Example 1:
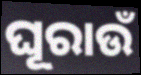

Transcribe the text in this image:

ଘୂରାଉଁ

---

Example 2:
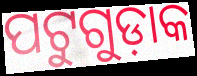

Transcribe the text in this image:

ପଟୁଗୁଡ଼ାକ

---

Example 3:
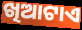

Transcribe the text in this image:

ଖିଆଟାଏ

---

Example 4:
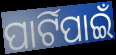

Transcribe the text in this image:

ପାର୍ଟିପାଇଁ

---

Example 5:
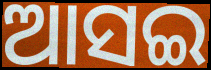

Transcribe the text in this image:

ଆସଇ